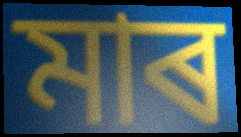
মাৰ